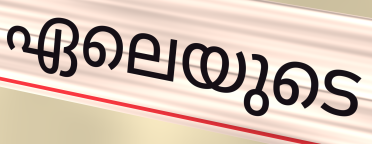
ഏലെയുടെ